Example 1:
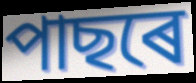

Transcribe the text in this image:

পাছৰে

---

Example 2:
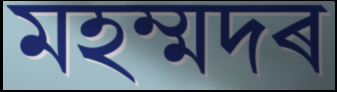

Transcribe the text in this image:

মহম্মদৰ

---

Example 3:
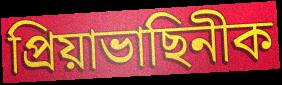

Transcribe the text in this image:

প্ৰিয়াভাছিনীক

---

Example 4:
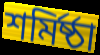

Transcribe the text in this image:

শৰ্মিষ্ঠা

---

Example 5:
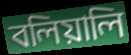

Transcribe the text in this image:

বলিয়ালি